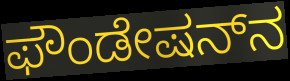
ಫೌಂಡೇಷನ್‌ನ